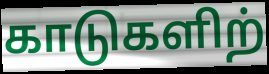
காடுகளிற்